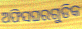
ଅଫିସଘରଗୁଡିକ